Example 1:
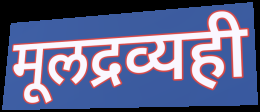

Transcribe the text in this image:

मूलद्रव्यही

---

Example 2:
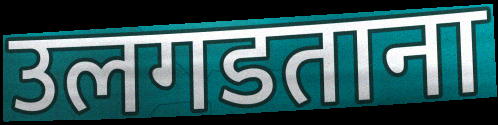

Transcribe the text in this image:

उलगडताना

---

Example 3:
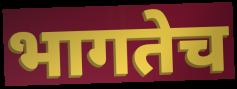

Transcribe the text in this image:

भागतेच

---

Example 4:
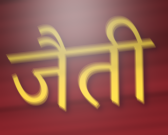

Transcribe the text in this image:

जैती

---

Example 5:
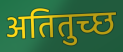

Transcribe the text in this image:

अतितुच्छ